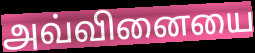
அவ்வினையை